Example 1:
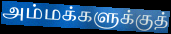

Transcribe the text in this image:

அம்மக்களுக்குத்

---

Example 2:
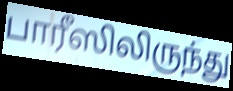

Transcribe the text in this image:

பாரீஸிலிருந்து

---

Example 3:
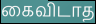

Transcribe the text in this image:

கைவிடாத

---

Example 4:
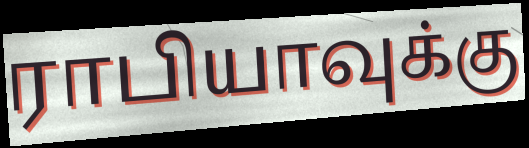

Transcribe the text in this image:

ராபியாவுக்கு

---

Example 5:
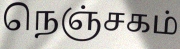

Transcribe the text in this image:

நெஞ்சகம்